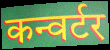
कन्वर्टर